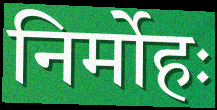
निर्मोहः